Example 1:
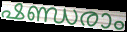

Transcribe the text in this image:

ഷണ്ഡരാം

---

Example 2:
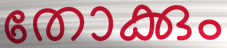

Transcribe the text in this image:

തോക്കും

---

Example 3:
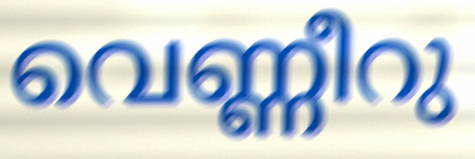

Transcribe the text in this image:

വെണ്ണീറു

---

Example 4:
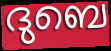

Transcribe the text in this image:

ദുബെ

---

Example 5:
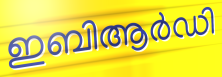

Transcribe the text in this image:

ഇബിആർഡി